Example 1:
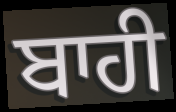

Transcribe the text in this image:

ਬਾਹੀ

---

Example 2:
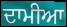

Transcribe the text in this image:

ਦਾਮੀਆ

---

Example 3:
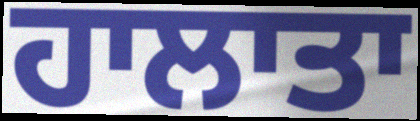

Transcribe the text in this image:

ਹਾਲਾਤਾ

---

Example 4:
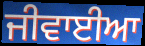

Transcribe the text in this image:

ਜੀਵਾਈਆ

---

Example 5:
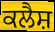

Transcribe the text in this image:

ਕਲੈਸ਼